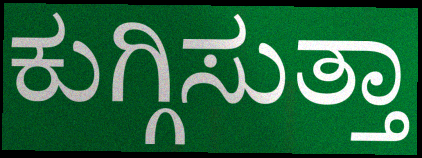
ಕುಗ್ಗಿಸುತ್ತಾ